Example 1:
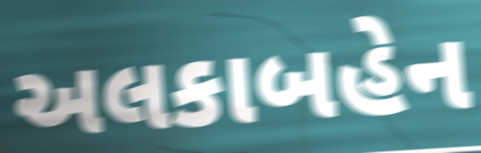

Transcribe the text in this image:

અલકાબહેન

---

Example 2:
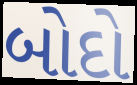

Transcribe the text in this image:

બોદો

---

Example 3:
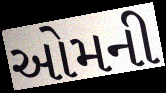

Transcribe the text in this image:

ઓમની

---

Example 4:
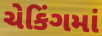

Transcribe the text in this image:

ચેકિંગમાં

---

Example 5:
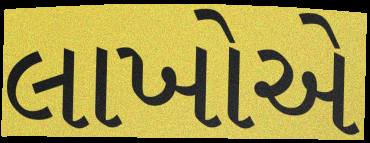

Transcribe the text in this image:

લાખોએ